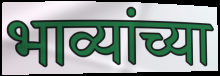
भाव्यांच्या